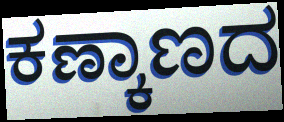
ಕಣ್ಕಾಣದ